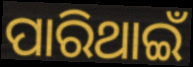
ପାରିଥାଇଁ